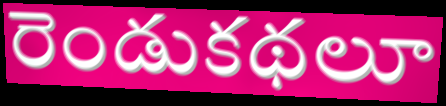
రెండుకథలూ